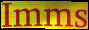
Imms